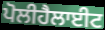
ਪੋਲੀਹੈਲਾਈਟ